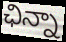
ఛిన్నా